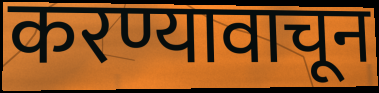
करण्यावाचून